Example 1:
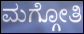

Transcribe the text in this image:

ಮಗ್ಗೋತಿ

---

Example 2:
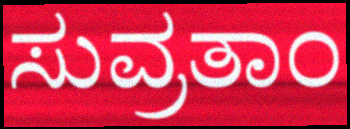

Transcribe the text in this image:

ಸುವ್ರತಾಂ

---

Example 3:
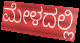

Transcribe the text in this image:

ಮೇಳದಲ್ಲಿ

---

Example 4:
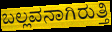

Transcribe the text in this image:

ಬಲ್ಲವನಾಗಿರುತ್ತಿ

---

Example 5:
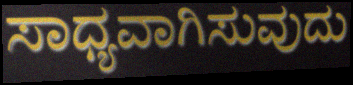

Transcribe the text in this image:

ಸಾಧ್ಯವಾಗಿಸುವುದು